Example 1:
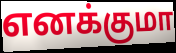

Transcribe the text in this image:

எனக்குமா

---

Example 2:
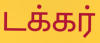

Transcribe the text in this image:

டக்கர்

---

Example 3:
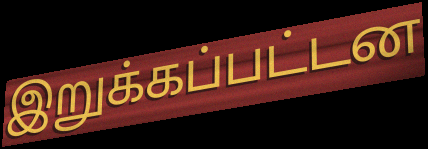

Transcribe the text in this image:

இறுக்கப்பட்டன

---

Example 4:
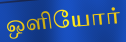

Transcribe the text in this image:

ஒளியோர்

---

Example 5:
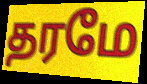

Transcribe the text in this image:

தரமே